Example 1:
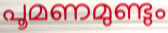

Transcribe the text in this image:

പൂമണമുണ്ടും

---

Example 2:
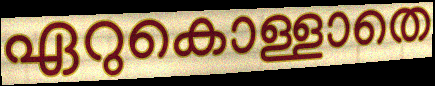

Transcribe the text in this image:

ഏറുകൊള്ളാതെ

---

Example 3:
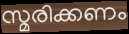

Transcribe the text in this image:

സ്മരിക്കണം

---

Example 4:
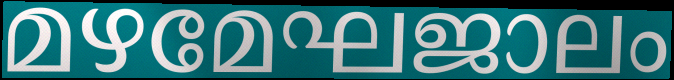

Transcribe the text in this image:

മഴമേഘജാലം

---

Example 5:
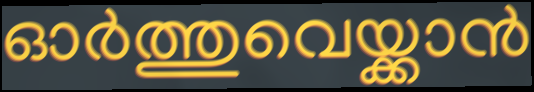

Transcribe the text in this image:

ഓർത്തുവെയ്ക്കാൻ